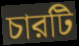
চারটি